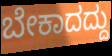
ಬೇಕಾದದ್ದು